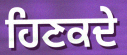
ਹਿਣਕਦੇ